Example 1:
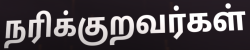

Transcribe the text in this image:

நரிக்குறவர்கள்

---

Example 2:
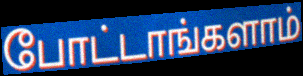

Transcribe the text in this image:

போட்டாங்களாம்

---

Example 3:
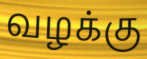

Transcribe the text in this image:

வழக்கு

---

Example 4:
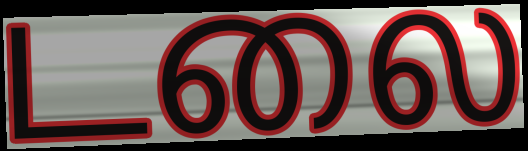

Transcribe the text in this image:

டலை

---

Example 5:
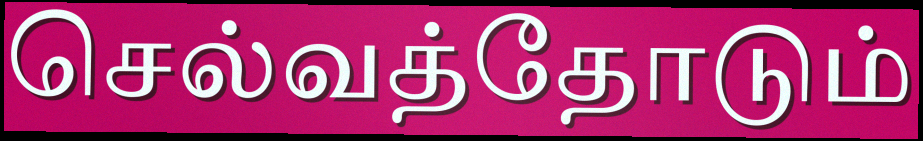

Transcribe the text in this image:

செல்வத்தோடும்